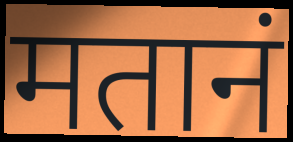
मतानं